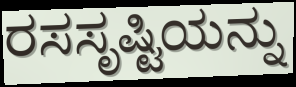
ರಸಸೃಷ್ಟಿಯನ್ನು